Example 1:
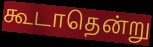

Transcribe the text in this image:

கூடாதென்று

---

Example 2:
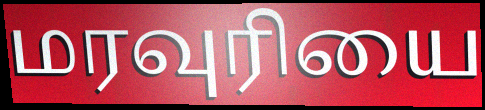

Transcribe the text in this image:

மரவுரியை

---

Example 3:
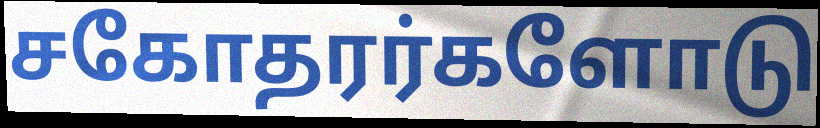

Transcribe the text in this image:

சகோதரர்களோடு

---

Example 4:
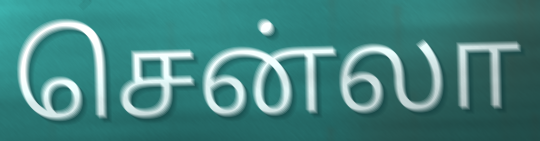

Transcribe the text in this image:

சென்லா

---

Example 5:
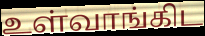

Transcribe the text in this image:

உள்வாங்கிட